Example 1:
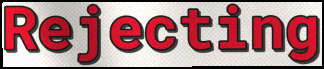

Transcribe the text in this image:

Rejecting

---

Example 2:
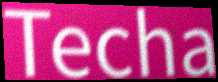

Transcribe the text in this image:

Techa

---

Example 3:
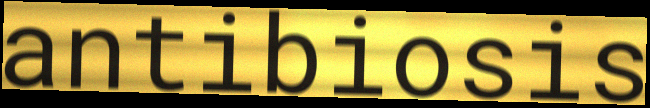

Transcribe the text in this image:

antibiosis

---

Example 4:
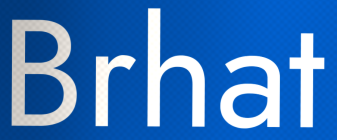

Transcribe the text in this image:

Brhat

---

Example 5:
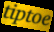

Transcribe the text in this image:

tiptoe